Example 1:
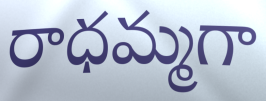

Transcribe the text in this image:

రాధమ్మగా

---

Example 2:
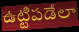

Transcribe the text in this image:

ఉట్టిపడేలా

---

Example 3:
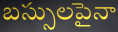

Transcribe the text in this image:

బస్సులపైనా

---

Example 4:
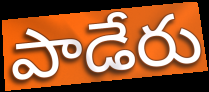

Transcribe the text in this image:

పాడేరు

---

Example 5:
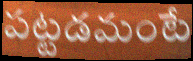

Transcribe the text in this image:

పట్టడమంటే